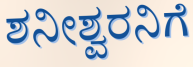
ಶನೀಶ್ವರನಿಗೆ